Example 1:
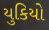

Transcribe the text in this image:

યુકિયો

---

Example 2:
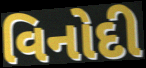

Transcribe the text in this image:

વિનોદી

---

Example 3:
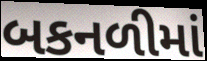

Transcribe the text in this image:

બકનળીમાં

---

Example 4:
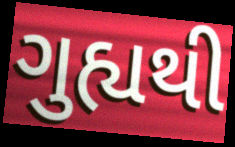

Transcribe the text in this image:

ગુહ્યથી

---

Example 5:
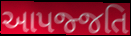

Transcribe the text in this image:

આપજ્જતિ